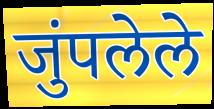
जुंपलेले